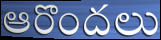
ఆరొందలు